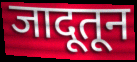
जादूतून